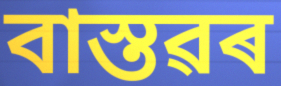
বাস্তৱৰ